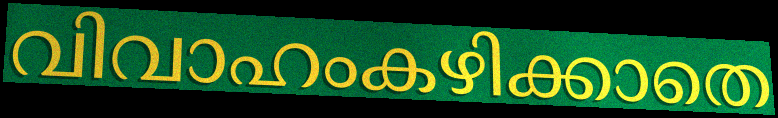
വിവാഹംകഴിക്കാതെ